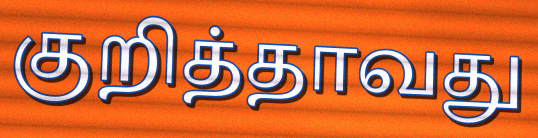
குறித்தாவது